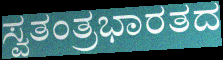
ಸ್ವತಂತ್ರಭಾರತದ